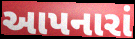
આપનારાં